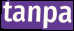
tanpa